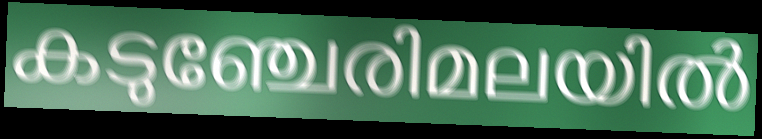
കടുഞ്ചേരിമലയിൽ